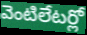
వెంటిలేటర్లో